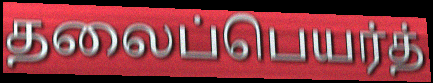
தலைப்பெயர்த்